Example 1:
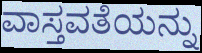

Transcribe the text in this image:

ವಾಸ್ತವತೆಯನ್ನು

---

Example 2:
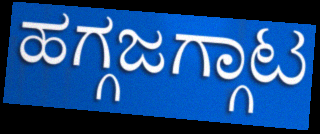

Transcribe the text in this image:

ಹಗ್ಗಜಗ್ಗಾಟ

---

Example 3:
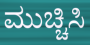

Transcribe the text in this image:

ಮುಚ್ಚಿಸಿ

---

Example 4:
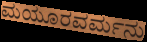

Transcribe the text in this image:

ಮಯೂರವರ್ಮನು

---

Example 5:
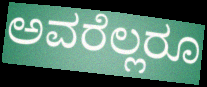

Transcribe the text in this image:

ಅವರೆಲ್ಲರೂ